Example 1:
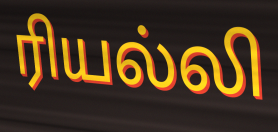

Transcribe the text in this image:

ரியல்லி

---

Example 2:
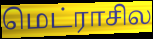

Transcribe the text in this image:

மெட்ராசில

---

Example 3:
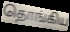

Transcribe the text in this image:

தொங்கிய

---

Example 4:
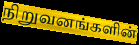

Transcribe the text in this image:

நிறுவனங்களின்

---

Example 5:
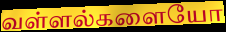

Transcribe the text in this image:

வள்ளல்களையோ